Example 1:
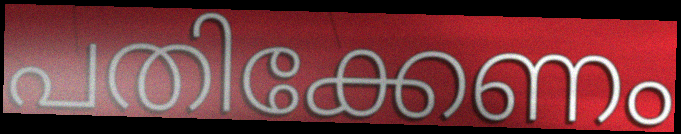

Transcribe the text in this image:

പതിക്കേണം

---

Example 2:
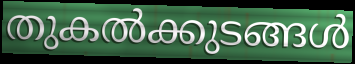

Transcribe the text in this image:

തുകൽക്കുടങ്ങൾ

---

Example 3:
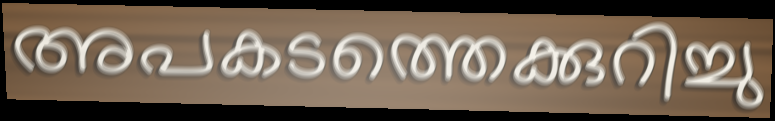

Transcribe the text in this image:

അപകടത്തെക്കുറിച്ചു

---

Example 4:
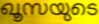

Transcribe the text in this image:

ഖൂസയുടെ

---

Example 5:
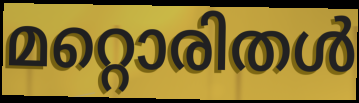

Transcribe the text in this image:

മറ്റൊരിതൾ